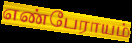
எண்பேராயம்